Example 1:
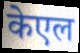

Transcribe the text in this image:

केएल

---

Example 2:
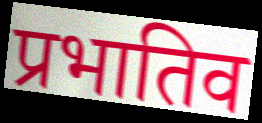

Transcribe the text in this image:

प्रभातिव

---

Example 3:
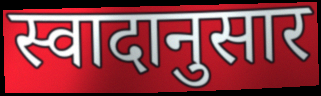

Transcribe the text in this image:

स्वादानुसार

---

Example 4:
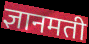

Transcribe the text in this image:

ज्ञानमती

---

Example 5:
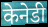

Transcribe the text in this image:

केनेडी